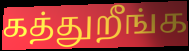
கத்துறீங்க